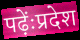
पढ़ेंःप्रदेश